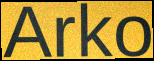
Arko